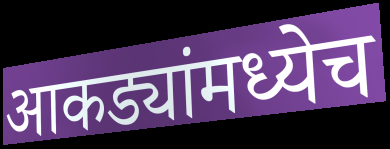
आकड्यांमध्येच